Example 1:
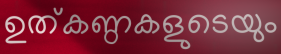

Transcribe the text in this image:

ഉത്കണ്ഠകളുടെയും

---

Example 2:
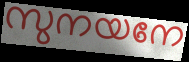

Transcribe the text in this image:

സുനയനേ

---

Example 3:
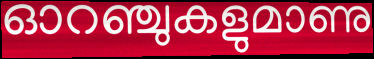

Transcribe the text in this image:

ഓറഞ്ചുകളുമാണു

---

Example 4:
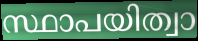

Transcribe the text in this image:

സ്ഥാപയിത്വാ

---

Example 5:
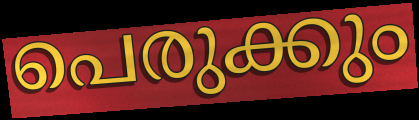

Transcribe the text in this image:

പെരുക്കും